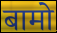
बामो